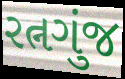
રત્નગુંજ